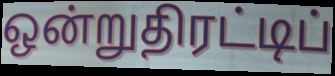
ஒன்றுதிரட்டிப்